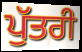
ਪੁੱਤਰੀ